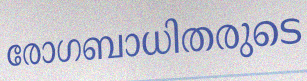
രോഗബാധിതരുടെ